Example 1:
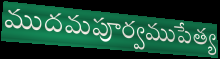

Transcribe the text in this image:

ముదమపూర్వముపేత్య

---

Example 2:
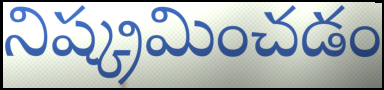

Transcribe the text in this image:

నిష్క్రమించడం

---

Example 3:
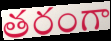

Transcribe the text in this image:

తరంగా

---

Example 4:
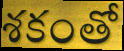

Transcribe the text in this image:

శకంతో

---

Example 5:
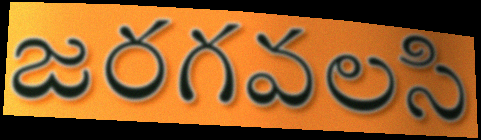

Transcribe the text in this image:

జరగవలసి